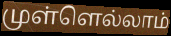
முள்ளெல்லாம்